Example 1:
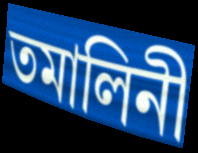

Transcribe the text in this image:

তমালিনী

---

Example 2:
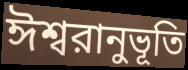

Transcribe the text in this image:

ঈশ্বরানুভূতি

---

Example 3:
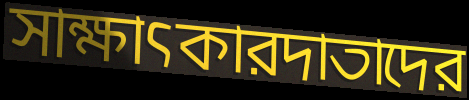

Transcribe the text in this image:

সাক্ষাৎকারদাতাদের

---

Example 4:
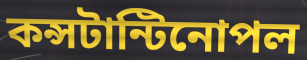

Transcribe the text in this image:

কন্সটান্টিনোপল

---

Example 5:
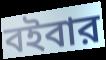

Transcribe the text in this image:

বইবার